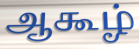
ஆகூழ்